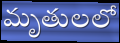
మృతులలో